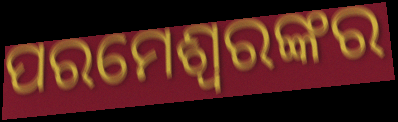
ପରମେଶ୍ୱରଙ୍କର